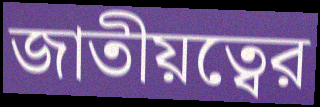
জাতীয়ত্বের